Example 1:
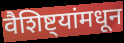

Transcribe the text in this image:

वैशिष्ट्यांमधून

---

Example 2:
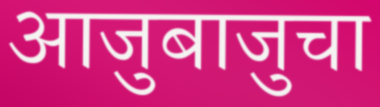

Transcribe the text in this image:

आजुबाजुचा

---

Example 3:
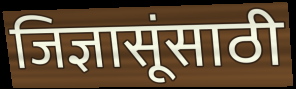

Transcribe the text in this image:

जिज्ञासूंसाठी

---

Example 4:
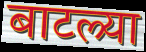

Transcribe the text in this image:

बाटल्या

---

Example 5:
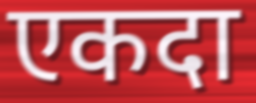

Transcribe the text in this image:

एकदा